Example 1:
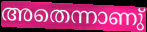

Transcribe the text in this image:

അതെന്നാണു്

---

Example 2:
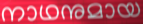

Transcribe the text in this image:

നാഥനുമായ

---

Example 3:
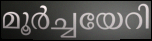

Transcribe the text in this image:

മൂർച്ചയേറി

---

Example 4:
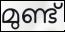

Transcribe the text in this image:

മുണ്ട്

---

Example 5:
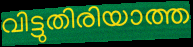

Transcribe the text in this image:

വിട്ടുതിരിയാത്ത